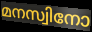
മനസ്വിനോ